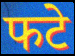
फटे